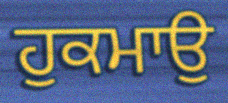
ਹੁਕਮਾਉ